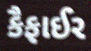
કૈફાઈર